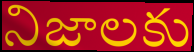
నిజాలకు